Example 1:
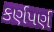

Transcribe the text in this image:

કર્ણપર્ણ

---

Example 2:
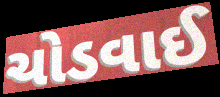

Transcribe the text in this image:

ચોડવાઈ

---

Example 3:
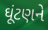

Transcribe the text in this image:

ઘૂંટણને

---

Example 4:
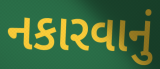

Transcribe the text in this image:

નકારવાનું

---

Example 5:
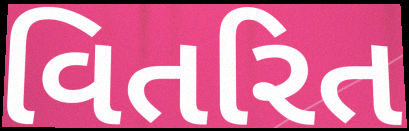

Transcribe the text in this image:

વિતરિત